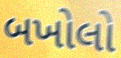
બખોલો